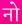
नो